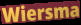
Wiersma